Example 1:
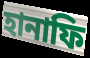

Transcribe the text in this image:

হানাফি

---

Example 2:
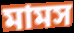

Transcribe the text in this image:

মামস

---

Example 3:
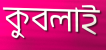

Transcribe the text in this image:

কুবলাই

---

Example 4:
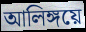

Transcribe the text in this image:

আলিঙ্গয়ে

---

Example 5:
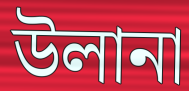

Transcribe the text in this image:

উলানা